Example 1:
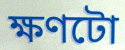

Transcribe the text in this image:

ক্ষণটো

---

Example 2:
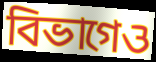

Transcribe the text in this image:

বিভাগেও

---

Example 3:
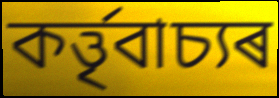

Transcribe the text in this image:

কৰ্ত্তৃবাচ্যৰ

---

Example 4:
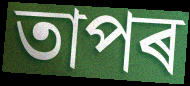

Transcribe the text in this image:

তাপৰ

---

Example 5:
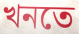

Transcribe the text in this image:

খনতে